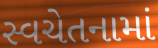
સ્વચેતનામાં